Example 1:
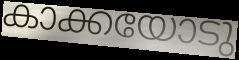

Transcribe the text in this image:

കാക്കയോടു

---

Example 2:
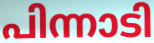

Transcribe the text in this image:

പിന്നാടി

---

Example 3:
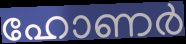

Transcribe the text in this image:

ഹോണർ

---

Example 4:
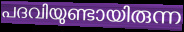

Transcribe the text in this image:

പദവിയുണ്ടായിരുന്ന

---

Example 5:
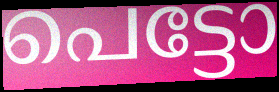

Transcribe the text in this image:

പെട്ടോ